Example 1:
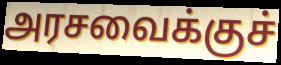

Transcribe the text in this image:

அரசவைக்குச்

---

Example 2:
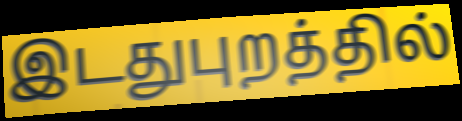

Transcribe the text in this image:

இடதுபுறத்தில்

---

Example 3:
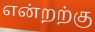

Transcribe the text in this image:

என்றற்கு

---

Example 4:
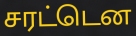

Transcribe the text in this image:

சரட்டென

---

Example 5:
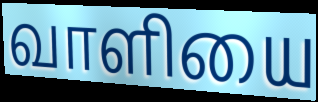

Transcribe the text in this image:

வாளியை